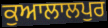
ਕੁਆਲਾਲਪੁਰ